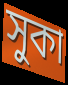
সুকা